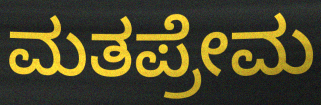
ಮತಪ್ರೇಮ